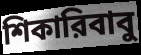
শিকারিবাবু